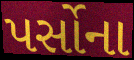
પર્સોના